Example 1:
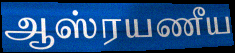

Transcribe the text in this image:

ஆஸ்ரயணீய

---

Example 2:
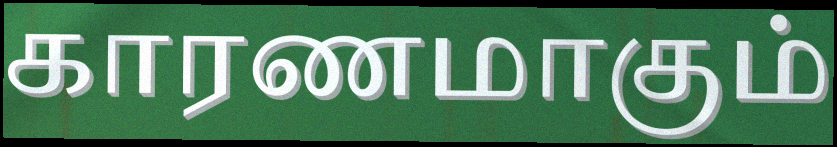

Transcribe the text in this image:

காரணமாகும்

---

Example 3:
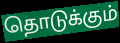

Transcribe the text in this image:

தொடுக்கும்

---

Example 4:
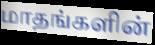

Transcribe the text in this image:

மாதங்களின்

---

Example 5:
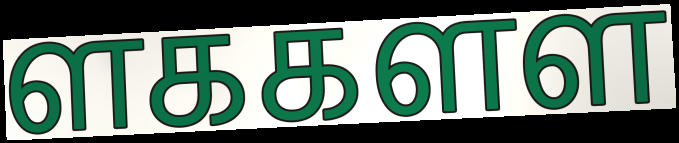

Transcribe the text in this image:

ளககளள